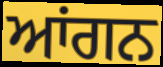
ਆਂਗਨ